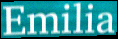
Emilia